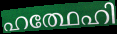
ഹത്ഥേഹി